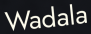
Wadala